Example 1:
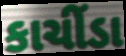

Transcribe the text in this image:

કાચીંડા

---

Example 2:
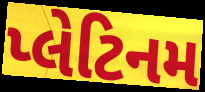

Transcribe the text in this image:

પ્લેટિનમ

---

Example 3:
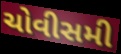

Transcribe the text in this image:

ચોવીસમી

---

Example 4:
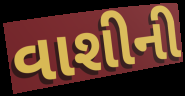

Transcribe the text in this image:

વાશીની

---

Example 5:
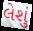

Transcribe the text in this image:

લેશું